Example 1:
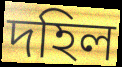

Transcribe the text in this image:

দহিল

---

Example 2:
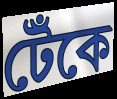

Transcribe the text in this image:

টেঁকে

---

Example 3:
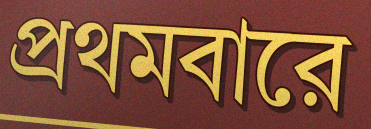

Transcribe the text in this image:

প্রথমবারে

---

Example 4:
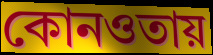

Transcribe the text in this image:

কোনওতায়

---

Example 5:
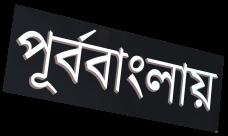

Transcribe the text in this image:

পূর্ববাংলায়